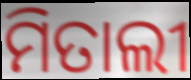
ମିତାଲୀ